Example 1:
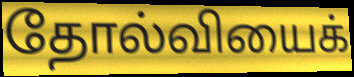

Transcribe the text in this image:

தோல்வியைக்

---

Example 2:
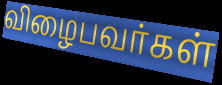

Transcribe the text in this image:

விழைபவர்கள்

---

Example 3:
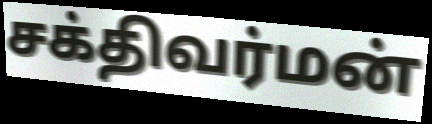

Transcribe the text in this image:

சக்திவர்மன்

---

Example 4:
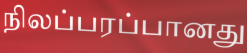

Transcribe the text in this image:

நிலப்பரப்பானது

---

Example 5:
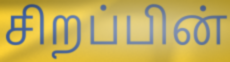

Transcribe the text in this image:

சிறப்பின்